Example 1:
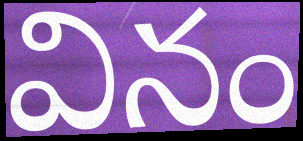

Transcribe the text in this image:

వినం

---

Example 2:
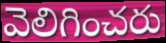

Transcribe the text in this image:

వెలిగించరు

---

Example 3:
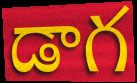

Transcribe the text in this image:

డాగ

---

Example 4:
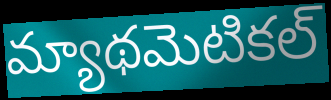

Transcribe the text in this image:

మ్యాథమెటికల్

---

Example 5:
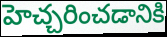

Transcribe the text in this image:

హెచ్చరించడానికి